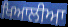
ਖਿਆਲੀਆ